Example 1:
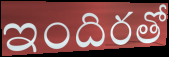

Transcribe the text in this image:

ఇందిరతో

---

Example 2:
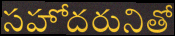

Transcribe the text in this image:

సహోదరునితో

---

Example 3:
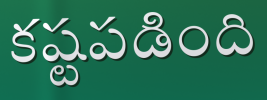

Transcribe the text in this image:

కష్టపడింది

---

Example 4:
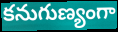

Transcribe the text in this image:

కనుగుణ్యంగా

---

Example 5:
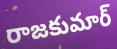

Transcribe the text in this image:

రాజకుమార్